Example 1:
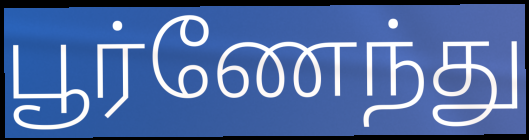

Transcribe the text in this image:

பூர்ணேந்து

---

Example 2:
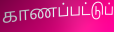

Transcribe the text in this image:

காணப்பட்டுப்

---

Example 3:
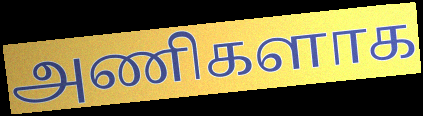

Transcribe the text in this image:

அணிகளாக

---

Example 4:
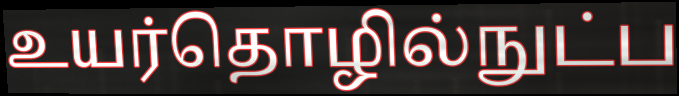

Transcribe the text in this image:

உயர்தொழில்நுட்ப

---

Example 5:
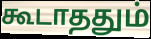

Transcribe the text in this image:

கூடாததும்